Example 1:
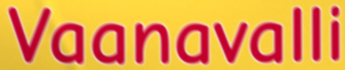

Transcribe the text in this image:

Vaanavalli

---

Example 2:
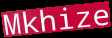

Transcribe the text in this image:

Mkhize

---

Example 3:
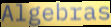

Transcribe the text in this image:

Algebras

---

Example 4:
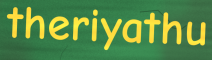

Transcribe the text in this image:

theriyathu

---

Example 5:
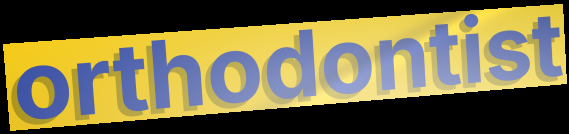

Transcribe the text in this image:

orthodontist